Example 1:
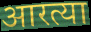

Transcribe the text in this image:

आरत्या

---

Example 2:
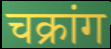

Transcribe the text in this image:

चक्रांग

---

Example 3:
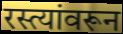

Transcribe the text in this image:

रस्त्यांवरून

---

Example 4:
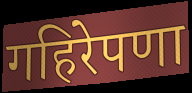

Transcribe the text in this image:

गहिरेपणा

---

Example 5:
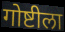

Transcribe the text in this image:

गोष्टीला